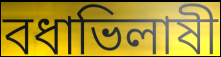
বধাভিলাষী